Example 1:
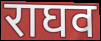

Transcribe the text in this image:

राघव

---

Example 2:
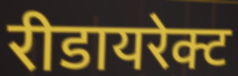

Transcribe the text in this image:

रीडायरेक्ट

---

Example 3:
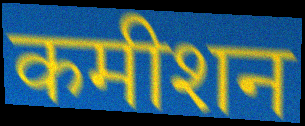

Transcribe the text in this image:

कमीशन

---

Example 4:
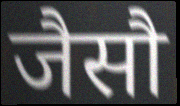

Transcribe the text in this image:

जैसौ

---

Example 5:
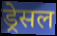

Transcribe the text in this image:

ड्रेसल